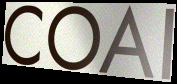
COAI